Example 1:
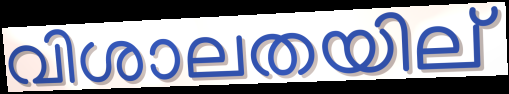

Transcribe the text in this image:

വിശാലതയില്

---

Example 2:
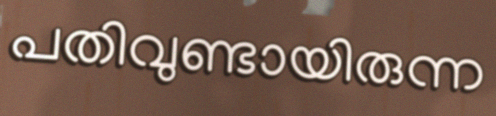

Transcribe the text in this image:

പതിവുണ്ടായിരുന്ന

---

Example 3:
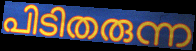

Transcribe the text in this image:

പിടിതരുന്ന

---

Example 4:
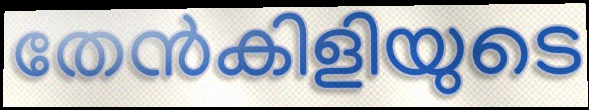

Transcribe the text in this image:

തേൻകിളിയുടെ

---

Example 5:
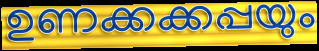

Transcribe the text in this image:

ഉണക്കക്കപ്പയും